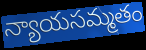
న్యాయసమ్మతం